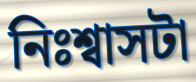
নিঃশ্বাসটা